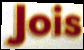
Jois